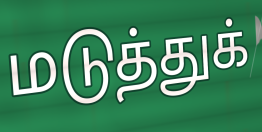
மடுத்துக்